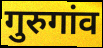
गुरुगांव